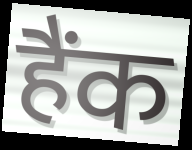
हैंक